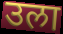
उला